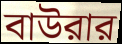
বাউরার